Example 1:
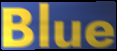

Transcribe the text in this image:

Blue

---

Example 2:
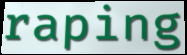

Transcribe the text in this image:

raping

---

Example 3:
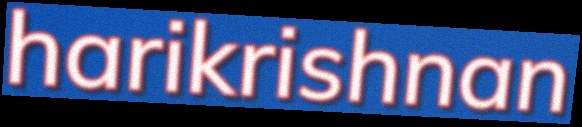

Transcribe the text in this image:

harikrishnan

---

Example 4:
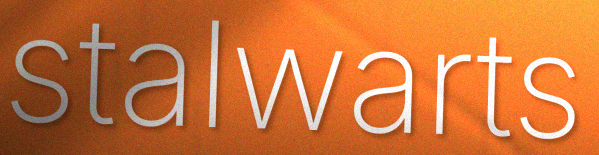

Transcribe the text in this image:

stalwarts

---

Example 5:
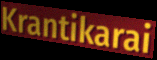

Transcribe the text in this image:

Krantikarai